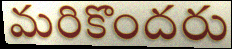
మరికొందరు